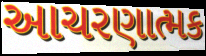
આચરણાત્મક